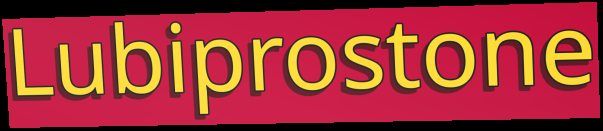
Lubiprostone